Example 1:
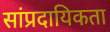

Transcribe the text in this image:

सांप्रदायिकता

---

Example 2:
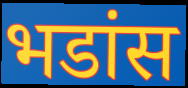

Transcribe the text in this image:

भडांस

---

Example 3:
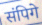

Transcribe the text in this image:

संपिगे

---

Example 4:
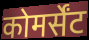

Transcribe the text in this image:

कोमर्सेंट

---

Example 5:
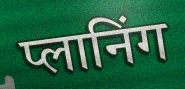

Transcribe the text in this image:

प्‍लानिंग